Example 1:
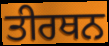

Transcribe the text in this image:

ਤੀਰਥਨ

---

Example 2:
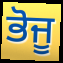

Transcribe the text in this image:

ਭੋਜੂ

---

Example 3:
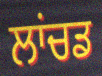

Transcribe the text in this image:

ਲਾਂਚਡ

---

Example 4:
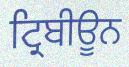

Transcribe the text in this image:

ਟ੍ਰਿਬੀਊਨ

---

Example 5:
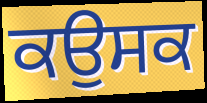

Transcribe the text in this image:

ਕਉਸਕ